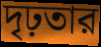
দৃঢ়তার